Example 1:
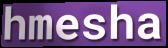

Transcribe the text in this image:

hmesha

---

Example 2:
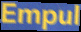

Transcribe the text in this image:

Empul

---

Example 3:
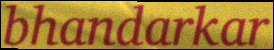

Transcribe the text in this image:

bhandarkar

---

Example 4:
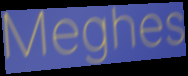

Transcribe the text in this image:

Meghes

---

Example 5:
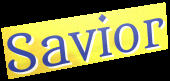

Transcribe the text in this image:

Savior